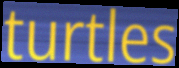
turtles